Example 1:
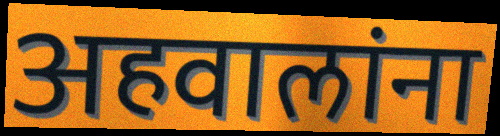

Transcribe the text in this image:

अहवालांना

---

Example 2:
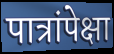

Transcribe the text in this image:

पात्रांपेक्षा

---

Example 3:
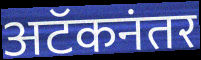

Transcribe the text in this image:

अटॅकनंतर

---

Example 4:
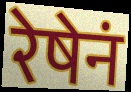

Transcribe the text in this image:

रेषेनं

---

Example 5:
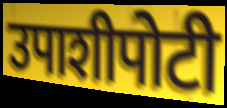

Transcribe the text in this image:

उपाशीपोटी